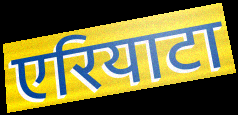
एरियाटा